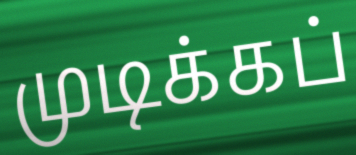
முடிக்கப்